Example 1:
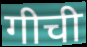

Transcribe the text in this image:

गीची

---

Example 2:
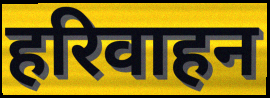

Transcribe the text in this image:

हरिवाहन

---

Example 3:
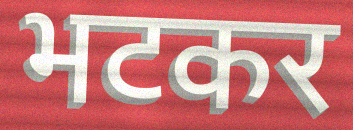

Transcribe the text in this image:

भटकर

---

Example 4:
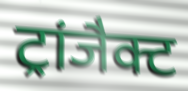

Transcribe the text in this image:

ट्रांजैक्ट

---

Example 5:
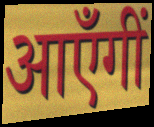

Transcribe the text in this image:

आएँगीं